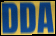
DDA